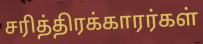
சரித்திரக்காரர்கள்